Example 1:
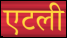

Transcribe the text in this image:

एटली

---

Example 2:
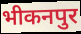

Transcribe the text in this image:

भीकनपुर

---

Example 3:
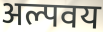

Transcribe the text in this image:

अल्पवय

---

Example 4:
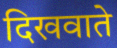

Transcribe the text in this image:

दिखवाते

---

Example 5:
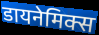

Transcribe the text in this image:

डायनेमिक्स